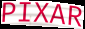
PIXAR